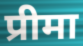
प्रीमा